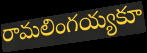
రామలింగయ్యకూ